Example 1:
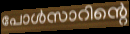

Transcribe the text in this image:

പോൾസാറിന്റെ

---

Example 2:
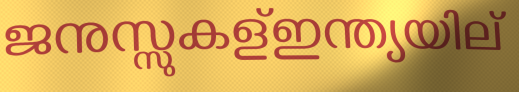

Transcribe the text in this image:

ജനുസ്സുകള്ഇന്ത്യയില്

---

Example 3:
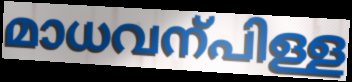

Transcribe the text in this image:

മാധവന്പിള്ള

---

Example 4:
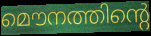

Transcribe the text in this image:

മൌനത്തിന്റെ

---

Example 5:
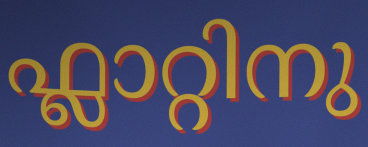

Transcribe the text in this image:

ഫ്ലാറ്റിനു